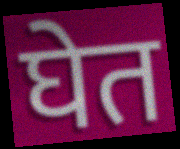
घेत